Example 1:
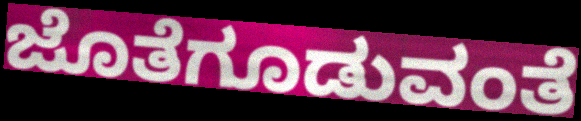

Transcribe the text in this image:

ಜೊತೆಗೂಡುವಂತೆ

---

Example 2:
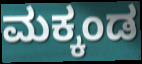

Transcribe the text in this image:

ಮಕ್ಕಂಡ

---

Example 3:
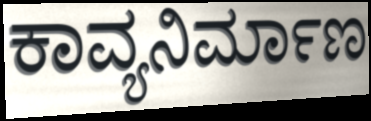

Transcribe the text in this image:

ಕಾವ್ಯನಿರ್ಮಾಣ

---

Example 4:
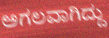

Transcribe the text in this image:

ಅಗಲವಾಗಿದ್ದು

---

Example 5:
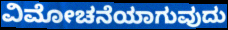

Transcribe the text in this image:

ವಿಮೋಚನೆಯಾಗುವುದು